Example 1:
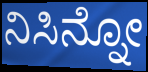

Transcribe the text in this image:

ನಿಸಿನ್ನೋ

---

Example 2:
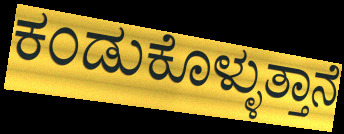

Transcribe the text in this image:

ಕಂಡುಕೊಳ್ಳುತ್ತಾನೆ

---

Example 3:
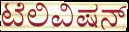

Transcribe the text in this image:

ಟೆಲಿವಿಷನ್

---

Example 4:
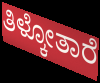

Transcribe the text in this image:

ತಿಳ್ಕೋತಾರೆ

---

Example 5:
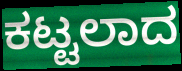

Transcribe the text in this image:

ಕಟ್ಟಲಾದ